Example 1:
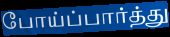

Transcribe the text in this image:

போய்ப்பார்த்து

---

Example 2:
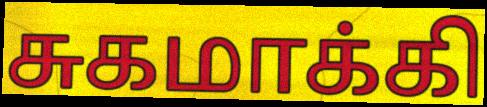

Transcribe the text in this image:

சுகமாக்கி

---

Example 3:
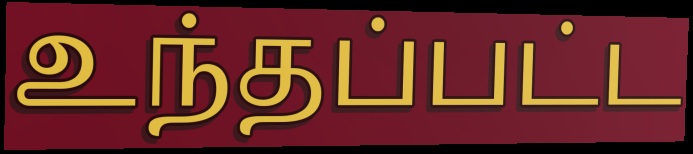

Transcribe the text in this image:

உந்தப்பட்ட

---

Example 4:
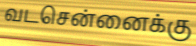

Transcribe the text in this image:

வடசென்னைக்கு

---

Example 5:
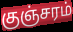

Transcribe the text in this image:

குஞ்சரம்